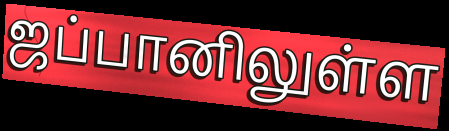
ஜப்பானிலுள்ள